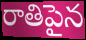
రాతిపైన